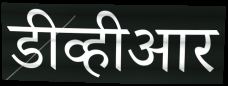
डीव्हीआर